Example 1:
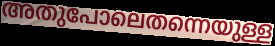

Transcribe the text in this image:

അതുപോലെതന്നെയുള്ള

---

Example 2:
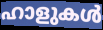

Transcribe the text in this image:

ഹാളുകൾ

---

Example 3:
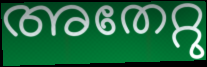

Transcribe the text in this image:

അതേറ്റു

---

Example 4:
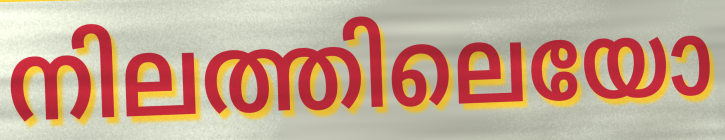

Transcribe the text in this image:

നിലത്തിലെയോ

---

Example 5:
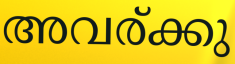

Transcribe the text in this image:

അവര്ക്കു